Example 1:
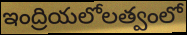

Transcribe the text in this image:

ఇంద్రియలోలత్వంలో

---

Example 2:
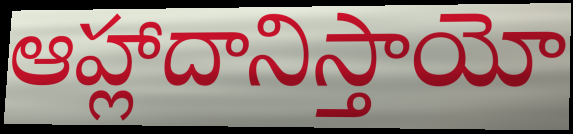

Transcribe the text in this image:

ఆహ్లాదానిస్తాయో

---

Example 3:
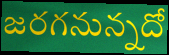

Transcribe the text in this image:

జరగనున్నదో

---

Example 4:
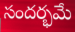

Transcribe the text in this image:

సందర్భమే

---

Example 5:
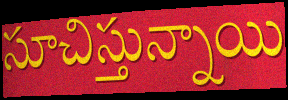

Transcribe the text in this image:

సూచిస్తున్నాయి